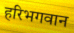
हरिभगवान